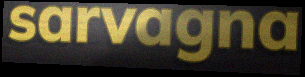
sarvagna